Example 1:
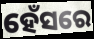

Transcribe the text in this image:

ହେଁସରେ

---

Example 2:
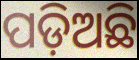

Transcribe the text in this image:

ପଡ଼ିଅଛି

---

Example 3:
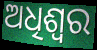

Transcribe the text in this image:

ଅଧିଶ୍ବର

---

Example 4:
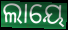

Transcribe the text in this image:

ଲାୟେ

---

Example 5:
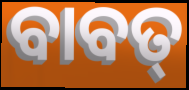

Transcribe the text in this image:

ବାବତ୍